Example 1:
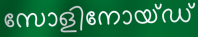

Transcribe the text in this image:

സോളിനോയ്ഡ്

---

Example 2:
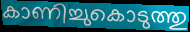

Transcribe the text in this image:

കാണിച്ചുകൊടുത്തു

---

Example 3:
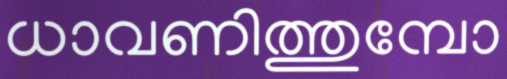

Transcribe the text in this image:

ധാവണിത്തുമ്പോ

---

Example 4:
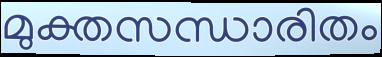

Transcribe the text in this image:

മുക്തസന്ധാരിതം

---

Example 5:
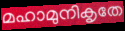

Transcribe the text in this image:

മഹാമുനികൃതേ